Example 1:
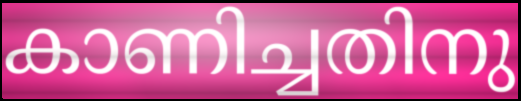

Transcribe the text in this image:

കാണിച്ചതിനു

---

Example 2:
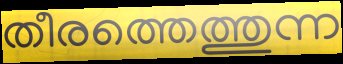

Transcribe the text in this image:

തീരത്തെത്തുന്ന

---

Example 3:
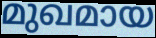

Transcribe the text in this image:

മുഖമായ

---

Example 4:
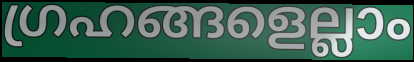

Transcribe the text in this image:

ഗ്രഹങ്ങളെല്ലാം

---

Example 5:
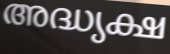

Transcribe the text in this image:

അദ്ധ്യക്ഷ